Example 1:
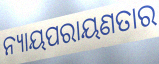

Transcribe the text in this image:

ନ୍ୟାୟପରାୟଣତାର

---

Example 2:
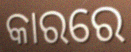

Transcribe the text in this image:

କାରରେ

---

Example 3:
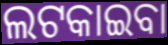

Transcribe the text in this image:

ଲଟକାଇବା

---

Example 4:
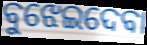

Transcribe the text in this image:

ବୁଝେଇଦେବା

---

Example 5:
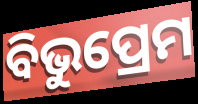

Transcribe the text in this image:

ବିଭୁପ୍ରେମ